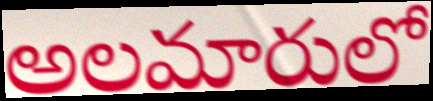
అలమారులో